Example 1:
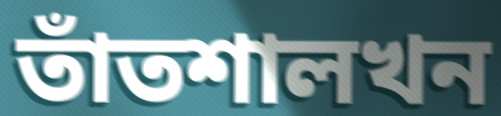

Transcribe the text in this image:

তাঁতশালখন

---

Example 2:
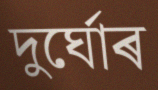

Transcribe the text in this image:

দুৰ্ঘোৰ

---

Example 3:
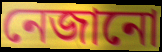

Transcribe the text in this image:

নেজানো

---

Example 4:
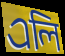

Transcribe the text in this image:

এলি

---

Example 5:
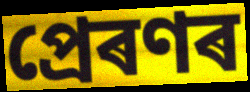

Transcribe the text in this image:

প্ৰেৰণৰ